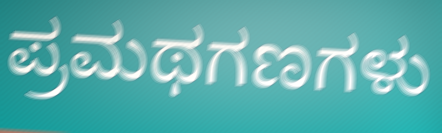
ಪ್ರಮಥಗಣಗಳು